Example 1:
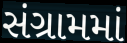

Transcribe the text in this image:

સંગ્રામમાં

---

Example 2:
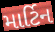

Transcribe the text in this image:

માર્ટિન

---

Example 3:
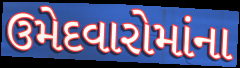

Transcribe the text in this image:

ઉમેદવારોમાંના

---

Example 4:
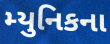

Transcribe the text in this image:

મ્યુનિકના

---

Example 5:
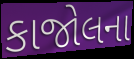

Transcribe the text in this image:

કાજોલના